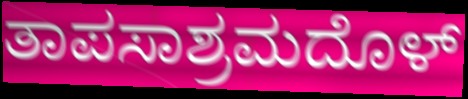
ತಾಪಸಾಶ್ರಮದೊಳ್